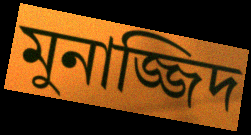
মুনাজ্জিদ